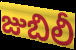
జుబిలీ